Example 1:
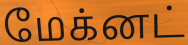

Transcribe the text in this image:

மேக்னட்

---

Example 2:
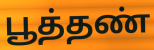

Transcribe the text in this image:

பூத்தண்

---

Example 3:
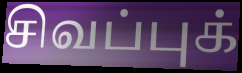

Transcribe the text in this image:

சிவப்புக்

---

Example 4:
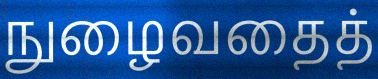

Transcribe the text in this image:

நுழைவதைத்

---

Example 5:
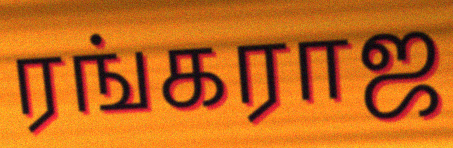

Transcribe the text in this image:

ரங்கராஜ